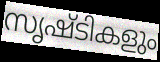
സൃഷ്ടികളും